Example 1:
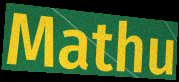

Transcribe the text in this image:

Mathu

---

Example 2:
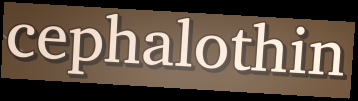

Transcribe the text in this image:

cephalothin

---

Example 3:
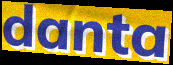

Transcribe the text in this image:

danta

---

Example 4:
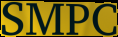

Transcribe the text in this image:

SMPC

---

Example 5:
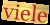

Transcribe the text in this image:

viele